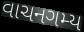
વાચનગમ્ય